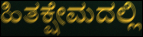
ಹಿತಕ್ಷೇಮದಲ್ಲಿ